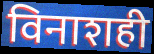
विनाशही